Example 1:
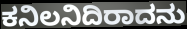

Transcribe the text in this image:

ಕನಿಲನಿದಿರಾದನು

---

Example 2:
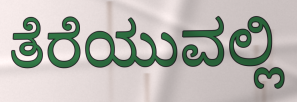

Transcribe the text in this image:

ತೆರೆಯುವಲ್ಲಿ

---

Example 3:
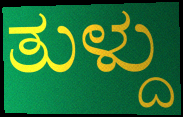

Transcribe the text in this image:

ತುಳ್ದು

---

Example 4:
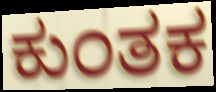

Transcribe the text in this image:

ಕುಂತಕ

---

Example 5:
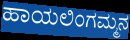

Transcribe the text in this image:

ಹಾಯಲಿಂಗಮ್ಮನ